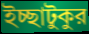
ইচ্ছাটুকুর